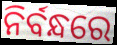
ନିର୍ବନ୍ଧରେ